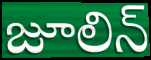
జూలిన్